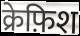
क्रेफ़िश